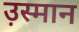
उ़स्मान